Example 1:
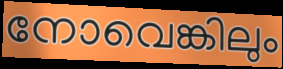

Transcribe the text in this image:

നോവെങ്കിലും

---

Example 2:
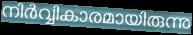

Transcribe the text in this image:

നിർവ്വികാരമായിരുന്നു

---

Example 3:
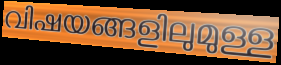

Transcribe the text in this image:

വിഷയങ്ങളിലുമുള്ള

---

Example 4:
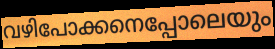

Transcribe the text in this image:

വഴിപോക്കനെപ്പോലെയും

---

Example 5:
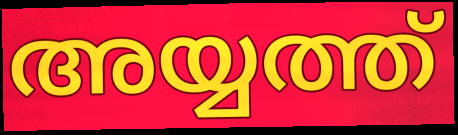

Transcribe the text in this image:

അയ്യത്ത്